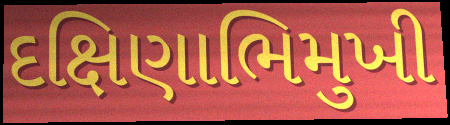
દક્ષિણાભિમુખી